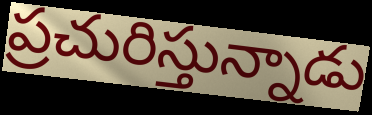
ప్రచురిస్తున్నాడు